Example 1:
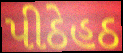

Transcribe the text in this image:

પીઠેહઠ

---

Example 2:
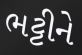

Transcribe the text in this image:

ભટ્ટીને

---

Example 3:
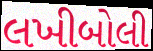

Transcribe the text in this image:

લખીબોલી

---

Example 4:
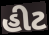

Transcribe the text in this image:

હીટ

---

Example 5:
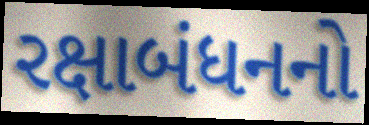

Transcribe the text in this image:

રક્ષાબંધનનો